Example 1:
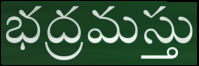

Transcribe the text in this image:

భద్రమస్తు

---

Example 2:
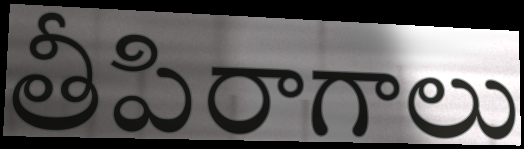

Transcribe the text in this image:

తీపిరాగాలు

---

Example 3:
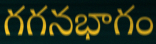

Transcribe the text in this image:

గగనభాగం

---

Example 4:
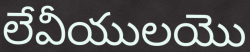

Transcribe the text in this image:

లేవీయులయొ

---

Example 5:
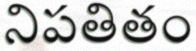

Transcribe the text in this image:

నిపతితం